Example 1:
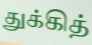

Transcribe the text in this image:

துக்கித்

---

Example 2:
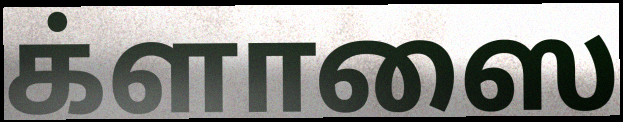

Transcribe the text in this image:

க்ளாஸை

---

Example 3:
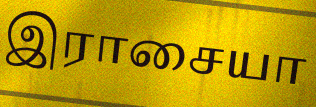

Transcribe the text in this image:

இராசையா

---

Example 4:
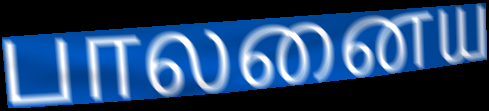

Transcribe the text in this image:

பாலனைய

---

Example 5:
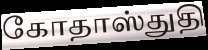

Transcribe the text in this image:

கோதாஸ்துதி